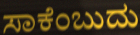
ಸಾಕೆಂಬುದು